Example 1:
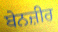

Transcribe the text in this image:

ਬੇਨਜ਼ੀਰ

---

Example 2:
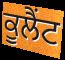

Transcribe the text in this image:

ਕੂਲੈਂਟ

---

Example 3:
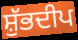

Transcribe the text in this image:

ਸ਼ੁੱਭਦੀਪ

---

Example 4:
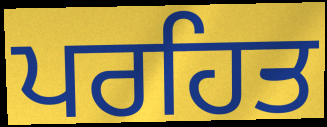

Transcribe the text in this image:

ਪਰਹਿਤ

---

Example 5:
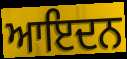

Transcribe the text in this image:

ਆਇਦਨ